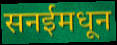
सनईमधून